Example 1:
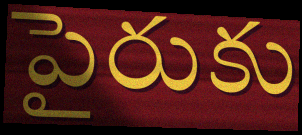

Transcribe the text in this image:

పైరుకు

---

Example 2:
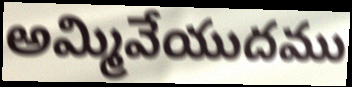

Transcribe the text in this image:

అమ్మివేయుదము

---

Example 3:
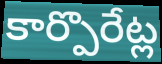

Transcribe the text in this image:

కార్పొరేట్ల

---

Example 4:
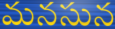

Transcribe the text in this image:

మనసున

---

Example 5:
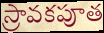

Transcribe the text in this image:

స్రావకపూత